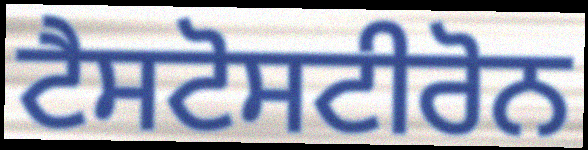
ਟੈਸਟੋਸਟੀਰੋਨ